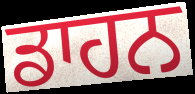
ਡਾਹਨ